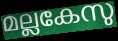
മല്ലകേസു